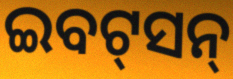
ଇବଟ୍‌ସନ୍